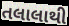
તલાલાથી